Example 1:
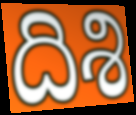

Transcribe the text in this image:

దిశి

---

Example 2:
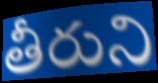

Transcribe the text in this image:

తీరుని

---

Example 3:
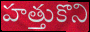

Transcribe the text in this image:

హత్తుకొని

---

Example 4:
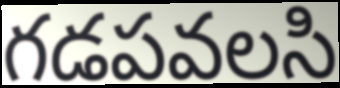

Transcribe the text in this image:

గడపవలసి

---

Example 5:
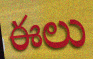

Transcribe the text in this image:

ఈలు